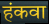
हंकवा